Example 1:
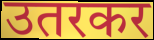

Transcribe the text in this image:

उतरकर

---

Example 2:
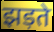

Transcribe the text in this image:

झड़ते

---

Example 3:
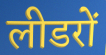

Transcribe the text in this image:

लीडरों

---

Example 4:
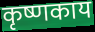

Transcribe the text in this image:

कृष्णकाय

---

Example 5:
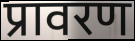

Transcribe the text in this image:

प्रावरण